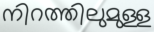
നിറത്തിലുമുള്ള